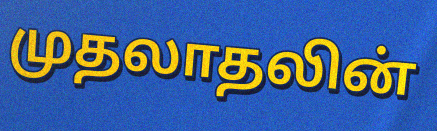
முதலாதலின்